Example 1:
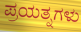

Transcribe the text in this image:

ಪ್ರಯತ್ನಗಳು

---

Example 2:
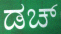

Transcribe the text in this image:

ಡಚ್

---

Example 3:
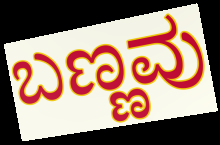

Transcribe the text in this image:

ಬಣ್ಣವು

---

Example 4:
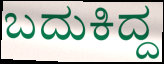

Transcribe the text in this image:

ಬದುಕಿದ್ದ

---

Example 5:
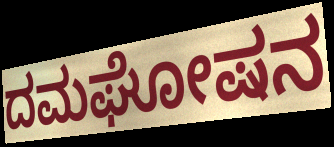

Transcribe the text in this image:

ದಮಘೋಷನ